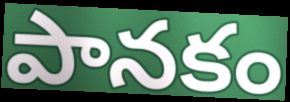
పానకం